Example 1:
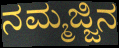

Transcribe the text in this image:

ನಮ್ಮಜ್ಜಿನ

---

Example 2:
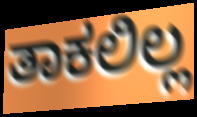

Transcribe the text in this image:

ತಾಕಲಿಲ್ಲ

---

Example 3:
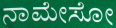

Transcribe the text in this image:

ನಾಮೇಸೋ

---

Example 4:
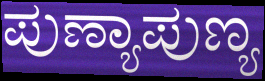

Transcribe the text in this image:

ಪುಣ್ಯಾಪುಣ್ಯ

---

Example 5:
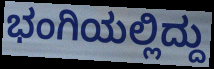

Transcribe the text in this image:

ಭಂಗಿಯಲ್ಲಿದ್ದು